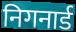
निगनार्ड